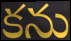
కను